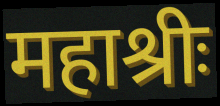
महाश्रीः